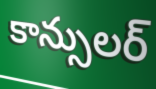
కాన్సులర్